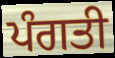
ਪੰਗਤੀ